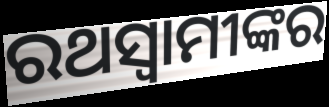
ରଥସ୍ୱାମୀଙ୍କର